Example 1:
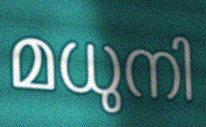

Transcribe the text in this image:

മധുനി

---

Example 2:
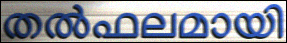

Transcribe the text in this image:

തൽഫലമായി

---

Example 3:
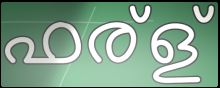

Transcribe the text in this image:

ഫര്ള്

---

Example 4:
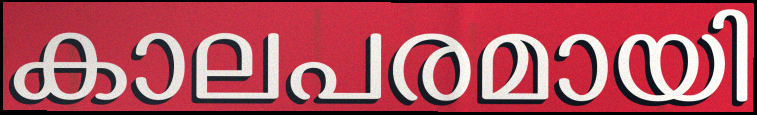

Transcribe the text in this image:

കാലപരമായി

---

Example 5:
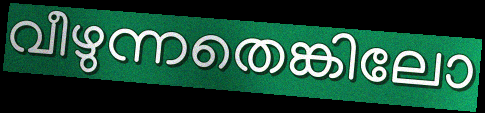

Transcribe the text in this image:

വീഴുന്നതെങ്കിലോ